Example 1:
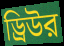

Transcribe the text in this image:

ড্রিউর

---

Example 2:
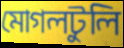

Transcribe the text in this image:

মোগলটুলি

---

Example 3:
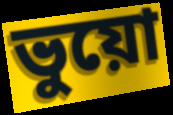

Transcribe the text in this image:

ভুয়ো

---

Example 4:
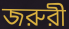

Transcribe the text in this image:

জরুরী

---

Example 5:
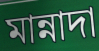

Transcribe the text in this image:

মান্নাদা